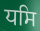
ਧਸਿ